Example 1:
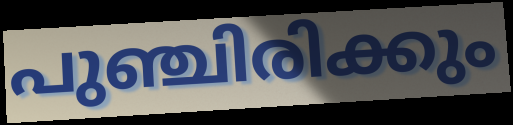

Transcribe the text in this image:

പുഞ്ചിരിക്കും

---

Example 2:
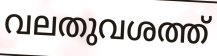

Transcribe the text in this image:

വലതുവശത്ത്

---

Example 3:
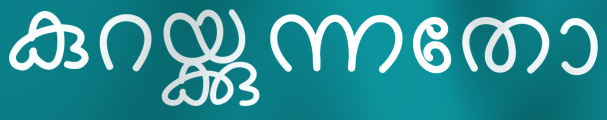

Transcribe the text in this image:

കുറയ്ക്കുന്നതോ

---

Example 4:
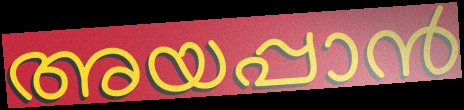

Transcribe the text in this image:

അയപ്പാൻ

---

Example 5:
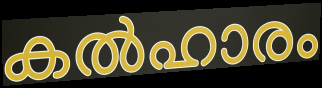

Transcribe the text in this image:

കൽഹാരം